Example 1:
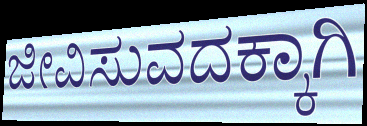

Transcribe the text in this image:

ಜೀವಿಸುವದಕ್ಕಾಗಿ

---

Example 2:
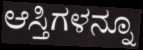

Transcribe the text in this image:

ಆಸ್ತಿಗಳನ್ನೂ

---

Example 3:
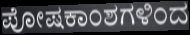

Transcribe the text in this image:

ಪೋಷಕಾಂಶಗಳಿಂದ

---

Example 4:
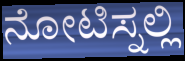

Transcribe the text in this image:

ನೋಟಿಸ್ನಲ್ಲಿ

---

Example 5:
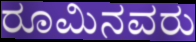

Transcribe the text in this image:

ರೂಮಿನವರು